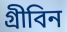
গ্রীবিন